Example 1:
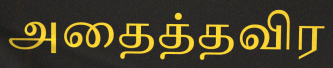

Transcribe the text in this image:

அதைத்தவிர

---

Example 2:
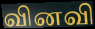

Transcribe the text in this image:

வினவி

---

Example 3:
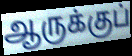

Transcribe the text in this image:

ஆருக்குப்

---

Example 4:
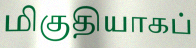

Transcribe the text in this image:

மிகுதியாகப்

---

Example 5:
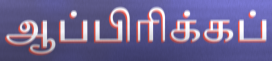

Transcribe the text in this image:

ஆப்பிரிக்கப்